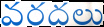
వరదలు